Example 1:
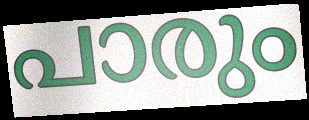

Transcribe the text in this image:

പാരും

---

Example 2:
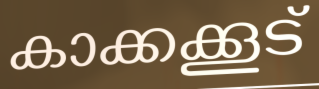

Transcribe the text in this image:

കാക്കക്കൂട്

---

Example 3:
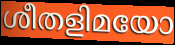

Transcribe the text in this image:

ശീതളിമയോ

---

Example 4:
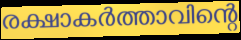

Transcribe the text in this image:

രക്ഷാകർത്താവിന്റെ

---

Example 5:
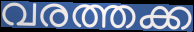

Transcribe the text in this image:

വരത്തക്ക